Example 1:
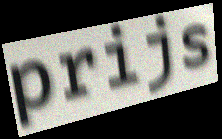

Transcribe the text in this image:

prijs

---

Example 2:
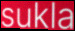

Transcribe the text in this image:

sukla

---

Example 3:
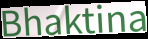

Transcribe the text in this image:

Bhaktina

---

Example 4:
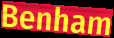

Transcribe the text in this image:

Benham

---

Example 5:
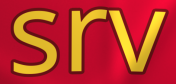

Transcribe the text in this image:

srv